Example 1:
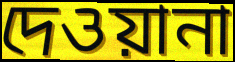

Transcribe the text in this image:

দেওয়ানা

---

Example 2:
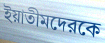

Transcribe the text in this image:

ইয়াতীমদেরকে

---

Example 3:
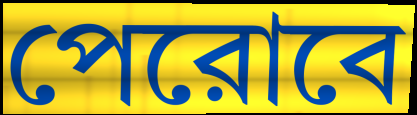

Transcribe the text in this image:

পেরোবে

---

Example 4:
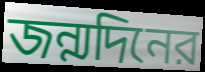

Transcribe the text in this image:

জন্মদিনের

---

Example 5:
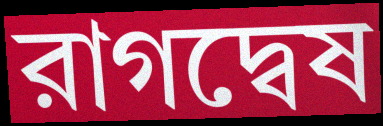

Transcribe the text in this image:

রাগদ্বেষ